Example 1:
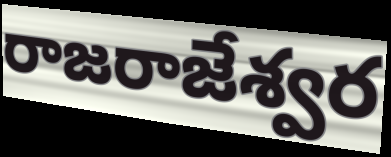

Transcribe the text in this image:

రాజరాజేశ్వర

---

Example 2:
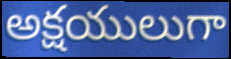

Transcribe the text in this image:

అక్షయులుగా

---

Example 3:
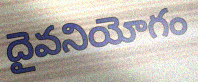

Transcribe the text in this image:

దైవనియోగం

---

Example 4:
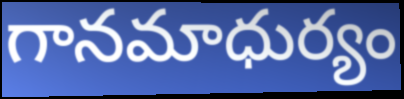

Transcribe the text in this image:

గానమాధుర్యం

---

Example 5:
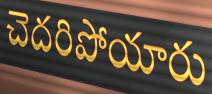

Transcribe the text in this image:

చెదరిపోయారు